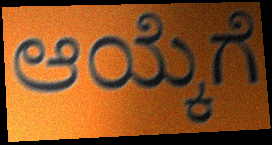
ಆಯ್ಕೆಗೆ